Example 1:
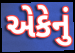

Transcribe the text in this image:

એકેનું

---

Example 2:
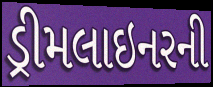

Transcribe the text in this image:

ડ્રીમલાઇનરની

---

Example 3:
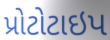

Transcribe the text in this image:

પ્રોટોટાઇપ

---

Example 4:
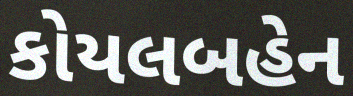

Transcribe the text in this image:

કોયલબહેન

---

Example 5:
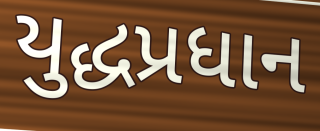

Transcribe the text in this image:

યુદ્ધપ્રધાન